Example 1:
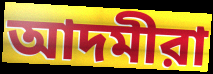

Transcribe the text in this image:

আদমীরা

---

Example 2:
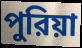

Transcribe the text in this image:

পুরিয়া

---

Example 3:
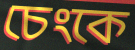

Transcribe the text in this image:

চেংকে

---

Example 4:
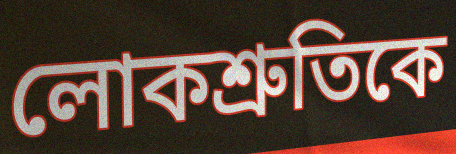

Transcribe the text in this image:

লোকশ্রুতিকে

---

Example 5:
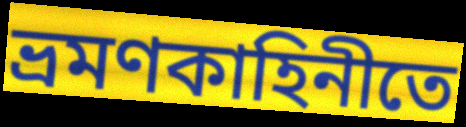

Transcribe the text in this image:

ভ্রমণকাহিনীতে